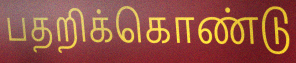
பதறிக்கொண்டு